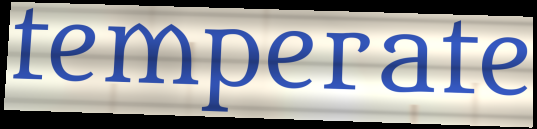
temperate